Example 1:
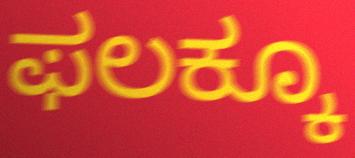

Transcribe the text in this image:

ಫಲಕ್ಕೂ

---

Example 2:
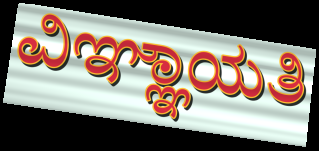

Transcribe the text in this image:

ವಿಞ್ಞಾಯತಿ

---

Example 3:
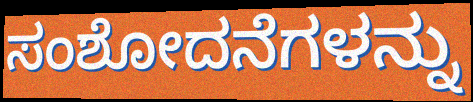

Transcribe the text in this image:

ಸಂಶೋದನೆಗಳನ್ನು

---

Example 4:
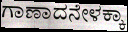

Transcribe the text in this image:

ಗಾಣಾದನೇಳಕ್ಕಾ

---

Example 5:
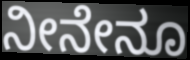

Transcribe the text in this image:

ನೀನೇನೂ